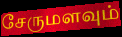
சேருமளவும்